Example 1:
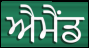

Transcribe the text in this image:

ਐਮੈਂਡ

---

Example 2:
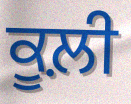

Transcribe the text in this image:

ਕੂਲ਼ੀ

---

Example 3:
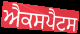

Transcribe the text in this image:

ਐਕਸਪੈਟਸ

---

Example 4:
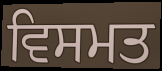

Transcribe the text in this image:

ਵਿਸਮਤ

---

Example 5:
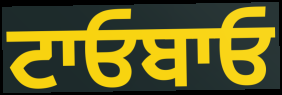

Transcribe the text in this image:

ਟਾਓਬਾਓ